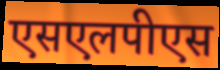
एसएलपीएस